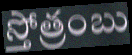
స్తోత్రంబు